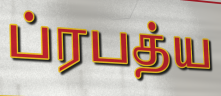
ப்ரபத்ய